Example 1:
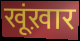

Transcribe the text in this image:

खूंख़ार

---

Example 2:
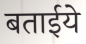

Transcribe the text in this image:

बताईये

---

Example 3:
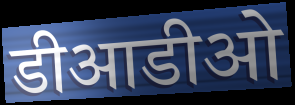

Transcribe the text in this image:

डीआडीओ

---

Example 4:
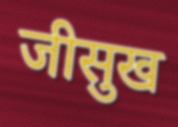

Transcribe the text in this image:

जीसुख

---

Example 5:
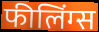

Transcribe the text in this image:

फीलिंग्स